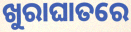
ଖୁରାଘାତରେ